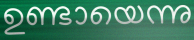
ഉണ്ടായെന്നു